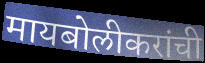
मायबोलीकरांची